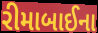
રીમાબાઈના